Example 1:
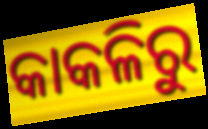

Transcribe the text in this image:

କାକଳିରୁ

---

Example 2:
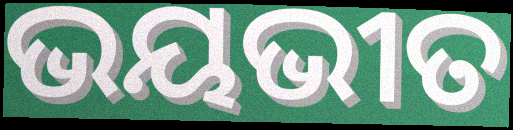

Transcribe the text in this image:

ଭୟଭୀତ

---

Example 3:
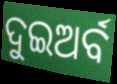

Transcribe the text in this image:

ଦୁଇଅର୍ବ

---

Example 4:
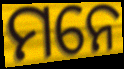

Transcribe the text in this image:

ମନେ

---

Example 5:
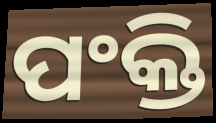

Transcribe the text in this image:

ପଂକ୍ତି